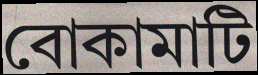
বোকামাটি